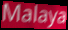
Malaya